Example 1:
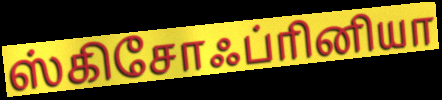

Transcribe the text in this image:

ஸ்கிசோஃப்ரினியா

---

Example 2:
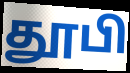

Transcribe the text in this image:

தூபி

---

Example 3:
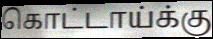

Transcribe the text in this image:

கொட்டாய்க்கு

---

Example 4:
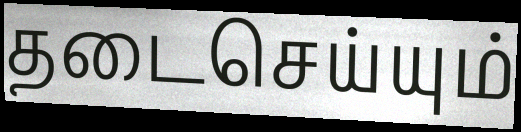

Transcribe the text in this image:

தடைசெய்யும்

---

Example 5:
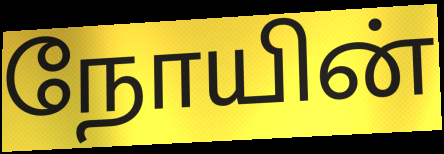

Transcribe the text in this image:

நோயின்